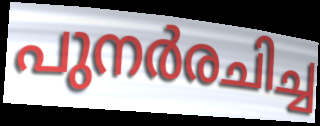
പുനർരചിച്ച